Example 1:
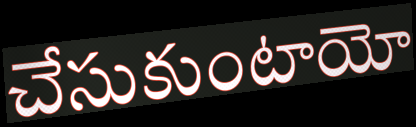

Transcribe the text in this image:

చేసుకుంటాయో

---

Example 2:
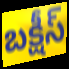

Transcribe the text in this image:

బక్షీస్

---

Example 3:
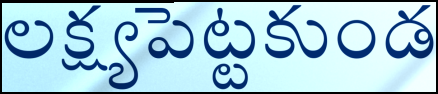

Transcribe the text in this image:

లక్ష్యపెట్టకుండ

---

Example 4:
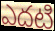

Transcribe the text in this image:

ఎదటి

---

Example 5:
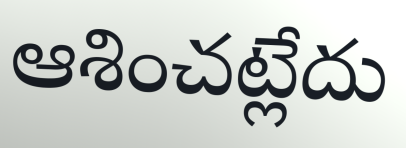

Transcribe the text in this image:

ఆశించట్లేదు